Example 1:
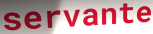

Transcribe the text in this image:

servante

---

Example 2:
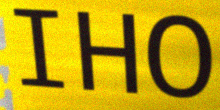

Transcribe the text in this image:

IHO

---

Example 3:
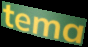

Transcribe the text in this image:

tema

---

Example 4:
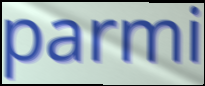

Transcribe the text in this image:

parmi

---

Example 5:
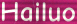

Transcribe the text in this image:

Hailuo